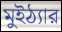
মুইঠ্যার